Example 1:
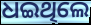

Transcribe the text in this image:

ଧଇଥିଲେ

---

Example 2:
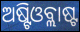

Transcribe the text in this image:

ଅଷ୍ଟିଓବ୍ଲାଷ୍ଟ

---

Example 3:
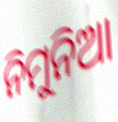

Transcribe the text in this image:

ନିମୁନିଆ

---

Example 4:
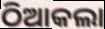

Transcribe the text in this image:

ଠିଆକଲା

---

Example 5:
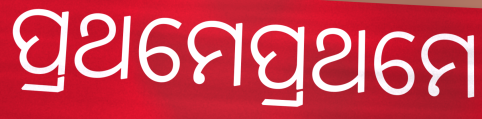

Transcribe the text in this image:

ପ୍ରଥମେପ୍ରଥମେ